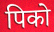
पिको